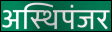
अस्थिपंजर